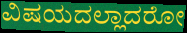
ವಿಷಯದಲ್ಲಾದರೋ